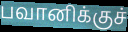
பவானிக்குச்